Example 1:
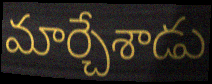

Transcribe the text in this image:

మార్చేశాడు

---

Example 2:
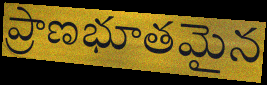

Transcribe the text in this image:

ప్రాణభూతమైన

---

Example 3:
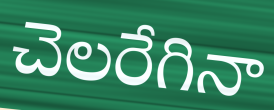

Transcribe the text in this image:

చెలరేగినా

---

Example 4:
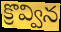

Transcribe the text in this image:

క్రొవ్విన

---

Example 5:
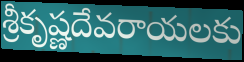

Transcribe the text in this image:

శ్రీకృష్ణదేవరాయలకు